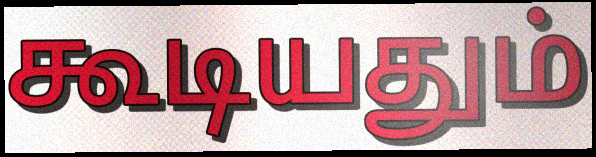
கூடியதும்